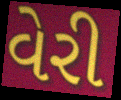
વેરી